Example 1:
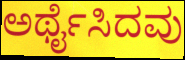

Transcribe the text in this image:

ಅರ್ಥೈಸಿದವು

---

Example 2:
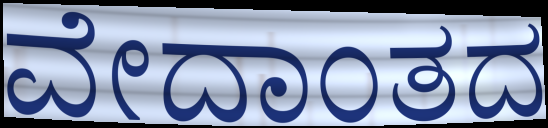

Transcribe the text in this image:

ವೇದಾಂತದ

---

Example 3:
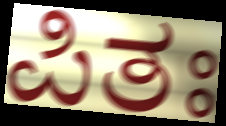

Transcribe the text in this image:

ಪಿತಃ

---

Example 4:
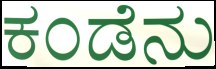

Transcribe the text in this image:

ಕಂಡೆನು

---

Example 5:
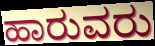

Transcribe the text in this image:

ಹಾರುವರು